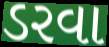
ડરવા